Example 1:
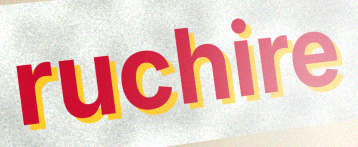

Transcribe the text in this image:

ruchire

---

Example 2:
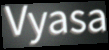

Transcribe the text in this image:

Vyasa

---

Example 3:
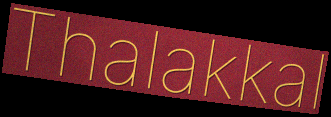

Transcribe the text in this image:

Thalakkal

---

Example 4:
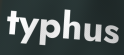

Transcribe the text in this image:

typhus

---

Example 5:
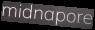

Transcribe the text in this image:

midnapore